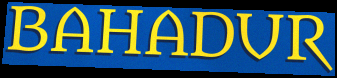
BAHADUR